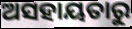
ଅସହାୟତାରୁ